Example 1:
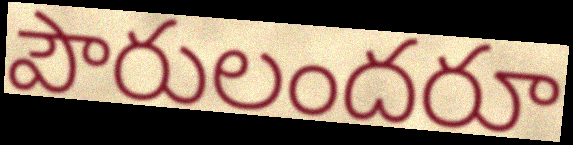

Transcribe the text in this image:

పౌరులందరూ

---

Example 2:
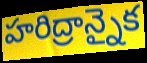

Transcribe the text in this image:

హరిద్రాన్నైక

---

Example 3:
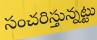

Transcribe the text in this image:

సంచరిస్తున్నట్టు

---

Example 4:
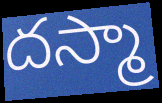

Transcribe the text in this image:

దస్మా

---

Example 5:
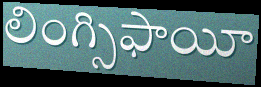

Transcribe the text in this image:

లింగ్సిఫాయీ